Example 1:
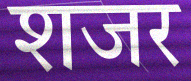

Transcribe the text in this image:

शजर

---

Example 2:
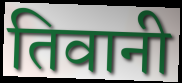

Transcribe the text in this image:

तिवानी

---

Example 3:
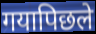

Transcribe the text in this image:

गयापिछले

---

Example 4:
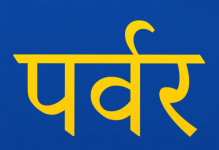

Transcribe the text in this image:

पर्वर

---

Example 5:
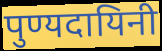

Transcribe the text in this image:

पुण्यदायिनी